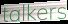
talkers